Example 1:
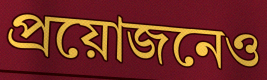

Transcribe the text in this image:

প্রয়োজনেও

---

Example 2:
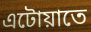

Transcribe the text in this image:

এটোয়াতে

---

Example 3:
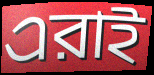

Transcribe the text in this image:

এরাই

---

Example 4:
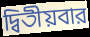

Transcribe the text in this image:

দ্বিতীয়বার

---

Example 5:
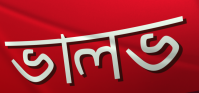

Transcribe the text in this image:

ভালভ